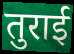
तुराई